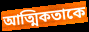
আত্মিকতাকে